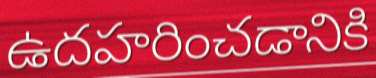
ఉదహరించడానికి